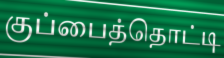
குப்பைத்தொட்டி